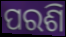
ପରଶି